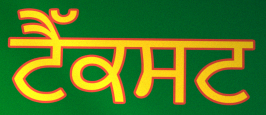
ਟੈੱਕਸਟ